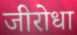
जीरोधा